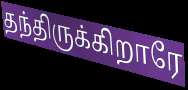
தந்திருக்கிறாரே